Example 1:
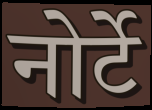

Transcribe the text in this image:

नोर्टे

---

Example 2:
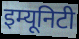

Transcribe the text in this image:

इम्यूनिटी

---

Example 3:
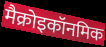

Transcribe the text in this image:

मैक्रोइकॉनमिक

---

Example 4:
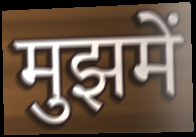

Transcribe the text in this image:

मुझमें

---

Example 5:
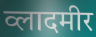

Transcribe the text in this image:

व्लादमीर